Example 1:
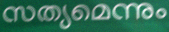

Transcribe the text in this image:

സത്യമെന്നും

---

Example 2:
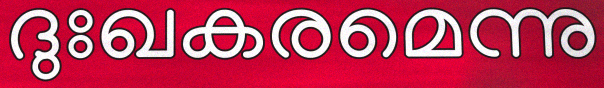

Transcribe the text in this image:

ദുഃഖകരമെന്നു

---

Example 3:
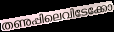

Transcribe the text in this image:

തണുപ്പിലെവിടേക്കോ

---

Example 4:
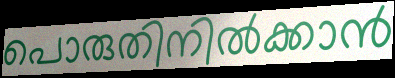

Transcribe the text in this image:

പൊരുതിനിൽക്കാൻ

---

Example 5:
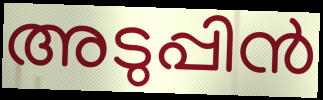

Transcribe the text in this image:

അടുപ്പിൻ